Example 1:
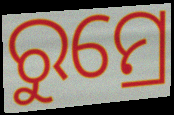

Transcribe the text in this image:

ରୁମ୍ରେ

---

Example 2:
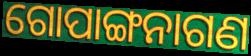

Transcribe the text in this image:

ଗୋପାଙ୍ଗନାଗଣ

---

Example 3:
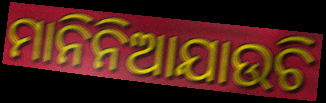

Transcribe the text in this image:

ମାନିନିଆଯାଉଚି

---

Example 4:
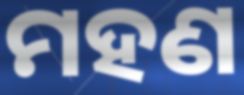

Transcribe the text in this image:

ମହଣ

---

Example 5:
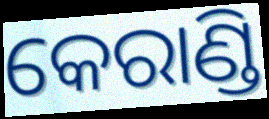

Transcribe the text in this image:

କେରାଣ୍ଡି